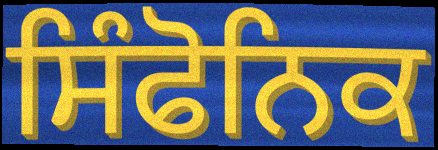
ਸਿੰਫੋਨਿਕ